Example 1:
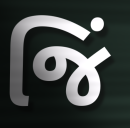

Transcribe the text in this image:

જિં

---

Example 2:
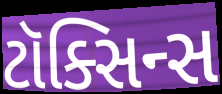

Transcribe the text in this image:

ટૉક્સિન્સ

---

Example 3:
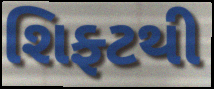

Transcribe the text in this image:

શિફ્ટથી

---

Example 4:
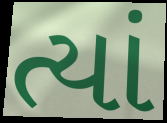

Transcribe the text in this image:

ત્યાં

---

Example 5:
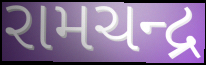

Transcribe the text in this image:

રામચન્દ્ર